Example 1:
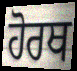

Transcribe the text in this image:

ਹੋਰਥ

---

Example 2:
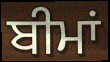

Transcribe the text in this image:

ਬੀਮਾਂ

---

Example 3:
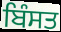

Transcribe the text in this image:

ਬਿੰਸਤ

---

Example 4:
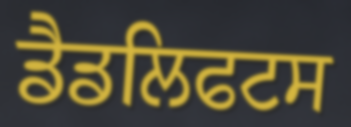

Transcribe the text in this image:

ਡੈਡਲਿਫਟਸ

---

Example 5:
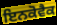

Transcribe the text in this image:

ਇਨਕੋਵੈਕ